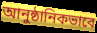
আনুষ্ঠানিকভাবে